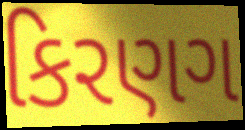
કિરણગ